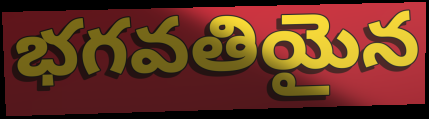
భగవతియైన